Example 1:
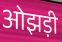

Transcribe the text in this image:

ओझड़ी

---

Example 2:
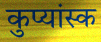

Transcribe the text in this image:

कुप्यांस्क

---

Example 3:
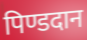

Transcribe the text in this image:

पिण्डदान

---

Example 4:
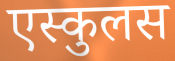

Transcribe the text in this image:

एस्कुलस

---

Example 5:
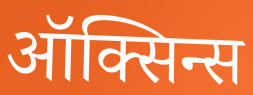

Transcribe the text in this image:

ऑक्सिन्स